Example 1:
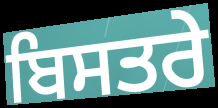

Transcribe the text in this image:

ਬਿਸਤਰੇ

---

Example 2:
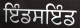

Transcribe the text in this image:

ਇੰਡਸਇੰਡ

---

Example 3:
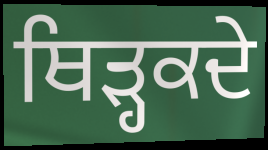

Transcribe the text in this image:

ਥਿੜ੍ਹਕਦੇ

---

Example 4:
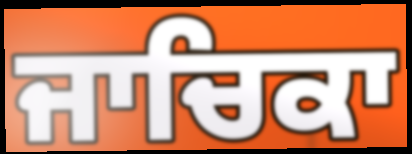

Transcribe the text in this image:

ਜਾਚਿਕਾ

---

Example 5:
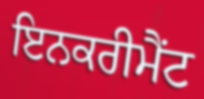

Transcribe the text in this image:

ਇਨਕਰੀਮੈਂਟ